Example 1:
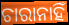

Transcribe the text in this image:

ଚାରାନାହିଁ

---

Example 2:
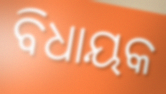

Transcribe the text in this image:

ବିଧାୟକ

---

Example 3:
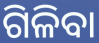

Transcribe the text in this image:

ଗିଳିବା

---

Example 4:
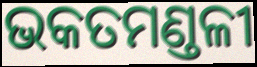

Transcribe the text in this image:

ଭକତମଣ୍ଡଳୀ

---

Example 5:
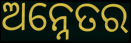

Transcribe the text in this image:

ଅନ୍ନେତର